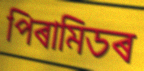
পিৰামিডৰ